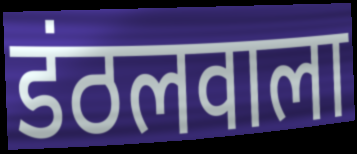
डंठलवाला